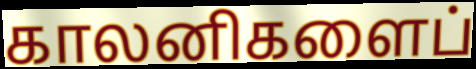
காலனிகளைப்